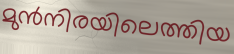
മുൻനിരയിലെത്തിയ